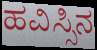
ಹವಿಸ್ಸಿನ